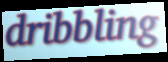
dribbling